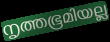
നൃത്തഭൂമിയല്ല